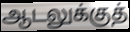
ஆடலுக்குத்